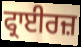
ਫ੍ਰਾਈਰਜ਼